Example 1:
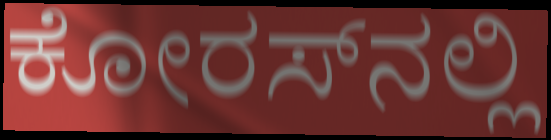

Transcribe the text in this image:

ಕೋರಸ್‌ನಲ್ಲಿ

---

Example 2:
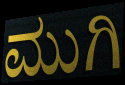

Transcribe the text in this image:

ಮುಗಿ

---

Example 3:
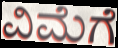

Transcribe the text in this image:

ವಿಮೆಗೆ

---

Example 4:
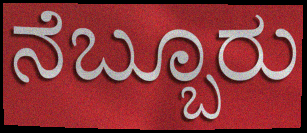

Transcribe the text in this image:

ನೆಬ್ಬೂರು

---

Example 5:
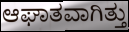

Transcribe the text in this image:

ಆಘಾತವಾಗಿತ್ತು